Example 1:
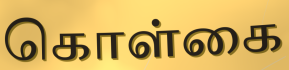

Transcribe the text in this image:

கொள்கை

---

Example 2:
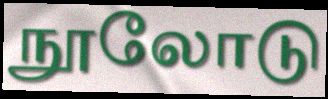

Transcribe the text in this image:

நூலோடு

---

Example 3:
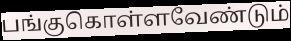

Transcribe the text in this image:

பங்குகொள்ளவேண்டும்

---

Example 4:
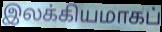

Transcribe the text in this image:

இலக்கியமாகப்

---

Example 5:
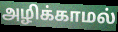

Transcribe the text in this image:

அழிக்காமல்